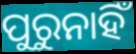
ପୁରୁନାହିଁ